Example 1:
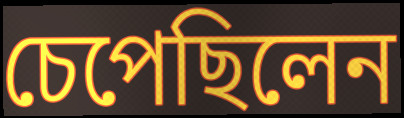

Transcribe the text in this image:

চেপেছিলেন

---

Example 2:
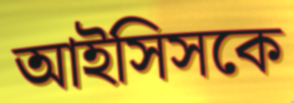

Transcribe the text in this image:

আইসিসকে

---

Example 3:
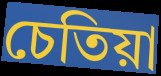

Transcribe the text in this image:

চেতিয়া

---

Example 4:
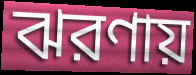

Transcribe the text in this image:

ঝরণায়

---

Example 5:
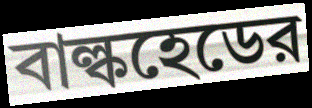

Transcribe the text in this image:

বাল্কহেডের